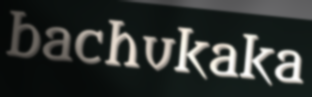
bachukaka